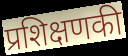
प्रशिक्षणकी